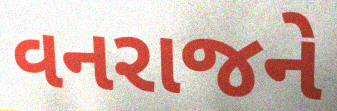
વનરાજને